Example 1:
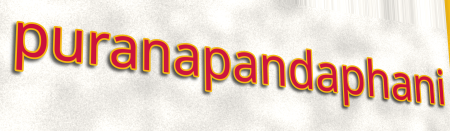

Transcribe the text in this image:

puranapandaphani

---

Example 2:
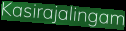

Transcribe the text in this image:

Kasirajalingam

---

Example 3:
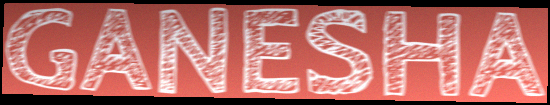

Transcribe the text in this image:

GANESHA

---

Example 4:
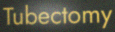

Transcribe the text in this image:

Tubectomy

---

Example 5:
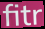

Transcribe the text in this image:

fitr